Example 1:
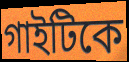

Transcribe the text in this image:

গাইটিকে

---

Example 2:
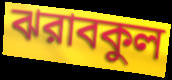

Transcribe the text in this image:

ঝরাবকুল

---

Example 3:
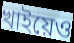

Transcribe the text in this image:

খাইয়েও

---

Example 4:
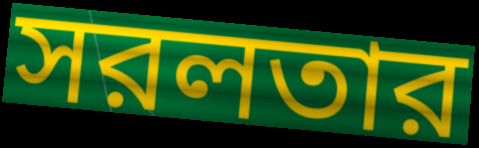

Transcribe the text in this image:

সরলতার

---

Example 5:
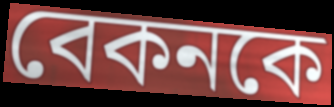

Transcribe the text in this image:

বেকনকে